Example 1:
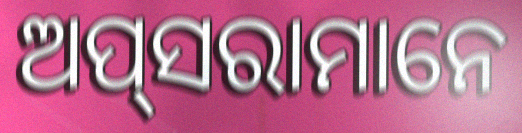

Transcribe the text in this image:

ଅପ୍‍ସରାମାନେ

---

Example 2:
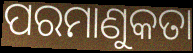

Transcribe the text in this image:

ପରମାଣୁକତା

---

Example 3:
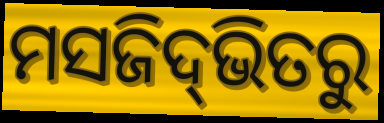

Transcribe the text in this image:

ମସଜିଦ୍‌ଭିତରୁ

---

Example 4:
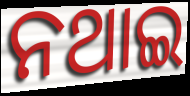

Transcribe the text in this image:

ନଥାଇ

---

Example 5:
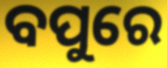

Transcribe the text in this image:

ବପୁରେ